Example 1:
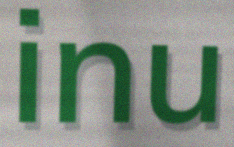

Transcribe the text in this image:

inu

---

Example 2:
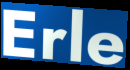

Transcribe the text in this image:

Erle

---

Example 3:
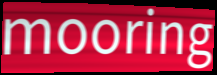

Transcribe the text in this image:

mooring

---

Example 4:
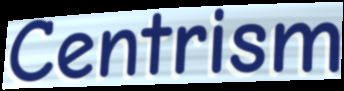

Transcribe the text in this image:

Centrism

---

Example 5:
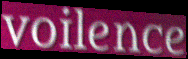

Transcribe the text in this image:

voilence